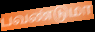
பவண்டுமா